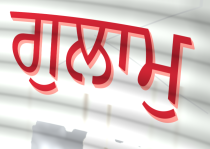
ਗੁਲਾਮੁ